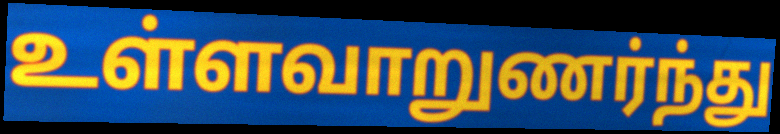
உள்ளவாறுணர்ந்து